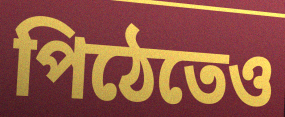
পিঠেতেও